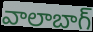
వాలాబాగ్